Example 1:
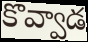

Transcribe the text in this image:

కొవ్వాడ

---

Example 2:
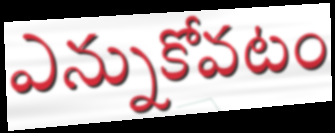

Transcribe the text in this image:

ఎన్నుకోవటం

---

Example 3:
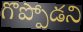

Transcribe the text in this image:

గొప్పోడని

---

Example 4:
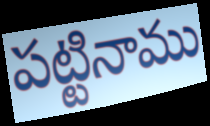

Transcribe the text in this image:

పట్టినాము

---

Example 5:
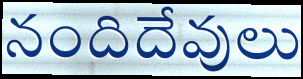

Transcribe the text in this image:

నందిదేవులు